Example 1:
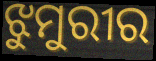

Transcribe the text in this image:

ଝୁମୁରୀର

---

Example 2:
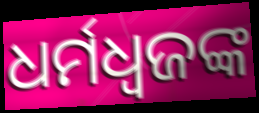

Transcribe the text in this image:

ଧର୍ମଧ୍ୱଜଙ୍କ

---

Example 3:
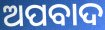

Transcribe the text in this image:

ଅପବାଦ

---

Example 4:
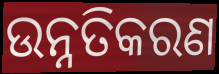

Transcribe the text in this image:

ଉନ୍ନତିକରଣ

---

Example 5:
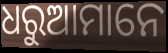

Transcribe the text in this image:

ଧରୁଆମାନେ